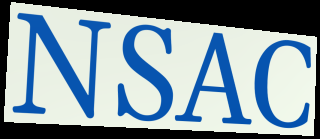
NSAC